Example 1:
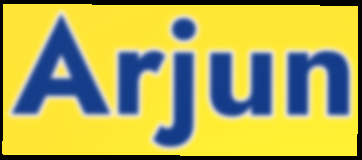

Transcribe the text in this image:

Arjun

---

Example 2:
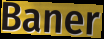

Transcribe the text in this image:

Baner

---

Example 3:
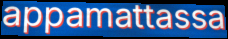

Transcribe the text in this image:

appamattassa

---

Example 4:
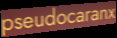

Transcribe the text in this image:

pseudocaranx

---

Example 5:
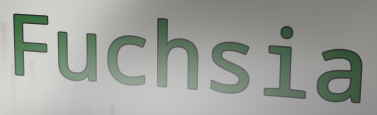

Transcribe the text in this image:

Fuchsia